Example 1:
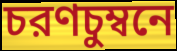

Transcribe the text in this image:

চরণচুম্বনে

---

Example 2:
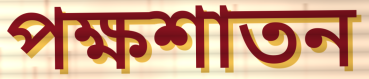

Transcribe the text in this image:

পক্ষশাতন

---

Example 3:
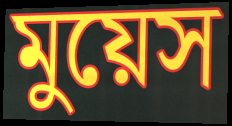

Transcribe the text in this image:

মুয়েস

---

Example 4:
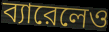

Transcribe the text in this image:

ব্যারেলেও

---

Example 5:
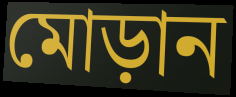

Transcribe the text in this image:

মোড়ান